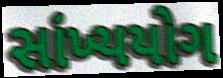
સાંખ્યયોગ